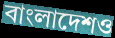
বাংলাদেশও